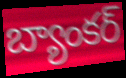
బ్యాంకర్